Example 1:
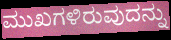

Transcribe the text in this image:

ಮುಖಗಳಿರುವುದನ್ನು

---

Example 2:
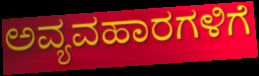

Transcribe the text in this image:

ಅವ್ಯವಹಾರಗಳಿಗೆ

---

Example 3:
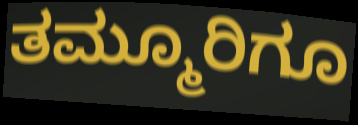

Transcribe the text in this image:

ತಮ್ಮೂರಿಗೂ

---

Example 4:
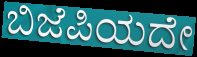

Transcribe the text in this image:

ಬಿಜೆಪಿಯದೇ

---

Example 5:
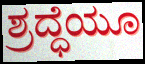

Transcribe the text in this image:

ಶ್ರದ್ಧೆಯೂ